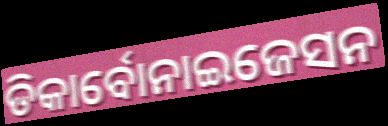
ଡିକାର୍ବୋନାଇଜେସନ